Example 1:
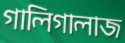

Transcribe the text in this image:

গালিগালাজ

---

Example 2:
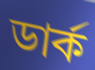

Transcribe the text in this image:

ডার্ক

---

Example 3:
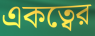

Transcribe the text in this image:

একত্বের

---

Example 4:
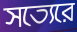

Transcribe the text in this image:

সত্যেরে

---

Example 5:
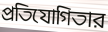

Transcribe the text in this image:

প্রতিযোগিতার